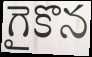
గైకొన